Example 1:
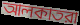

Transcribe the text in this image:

আলকাতরা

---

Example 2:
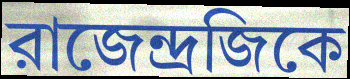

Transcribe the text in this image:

রাজেন্দ্রজিকে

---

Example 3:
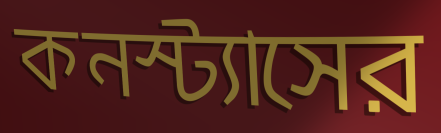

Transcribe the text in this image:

কনস্ট্যাসের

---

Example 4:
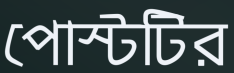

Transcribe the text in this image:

পোস্টটির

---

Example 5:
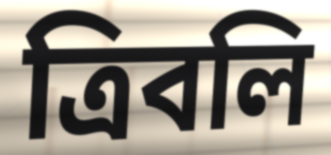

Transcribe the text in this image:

ত্রিবলি